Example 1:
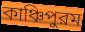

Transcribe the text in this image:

কাঞ্চিপুরম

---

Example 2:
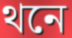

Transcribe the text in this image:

থনে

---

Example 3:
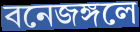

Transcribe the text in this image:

বনেজঙ্গলে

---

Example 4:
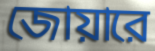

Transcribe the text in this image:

জোয়ারে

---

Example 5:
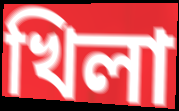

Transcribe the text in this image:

খিলা